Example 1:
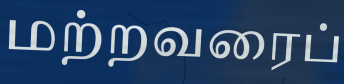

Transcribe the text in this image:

மற்றவரைப்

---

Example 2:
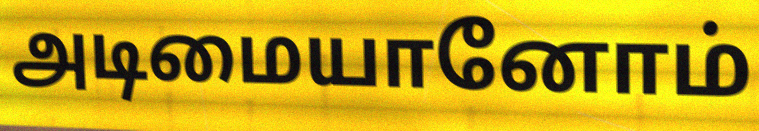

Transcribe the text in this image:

அடிமையானோம்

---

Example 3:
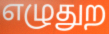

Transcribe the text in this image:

எழுதுற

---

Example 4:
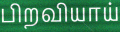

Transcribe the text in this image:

பிறவியாய்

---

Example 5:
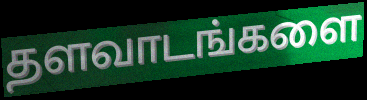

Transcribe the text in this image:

தளவாடங்களை